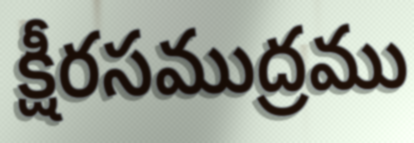
క్షీరసముద్రము